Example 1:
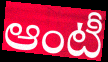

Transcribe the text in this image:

ఆంటీ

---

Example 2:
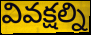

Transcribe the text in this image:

వివక్షల్ని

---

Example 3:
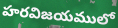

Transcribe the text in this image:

హరవిజయములో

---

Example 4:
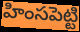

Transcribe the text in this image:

హింసపెట్టి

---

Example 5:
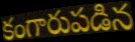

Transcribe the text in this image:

కంగారుపడిన